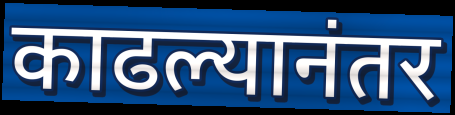
काढल्यानंतर